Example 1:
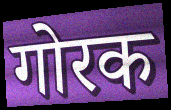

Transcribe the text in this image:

गोरक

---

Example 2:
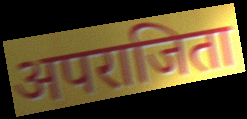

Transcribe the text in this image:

अपराजिता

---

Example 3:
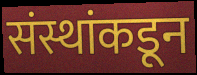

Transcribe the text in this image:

संस्थांकडून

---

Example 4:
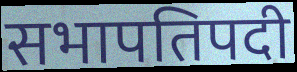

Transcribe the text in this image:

सभापतिपदी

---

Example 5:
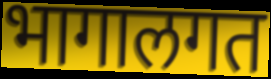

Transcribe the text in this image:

भागालगत